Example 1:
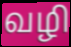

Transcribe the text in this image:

வழி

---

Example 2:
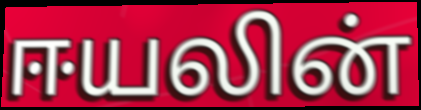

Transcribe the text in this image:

ஈயலின்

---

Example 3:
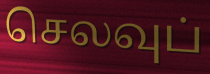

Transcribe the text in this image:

செலவுப்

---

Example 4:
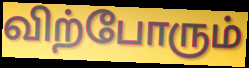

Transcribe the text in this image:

விற்போரும்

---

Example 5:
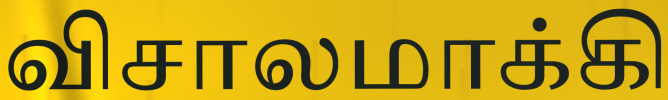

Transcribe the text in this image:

விசாலமாக்கி